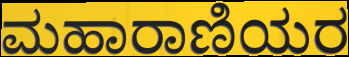
ಮಹಾರಾಣಿಯರ